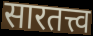
सारतत्त्व